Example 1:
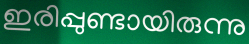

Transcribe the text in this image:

ഇരിപ്പുണ്ടായിരുന്നു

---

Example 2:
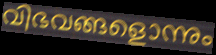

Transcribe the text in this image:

വിഭവങ്ങളൊന്നും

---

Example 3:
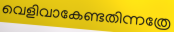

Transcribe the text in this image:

വെളിവാകേണ്ടതിന്നത്രേ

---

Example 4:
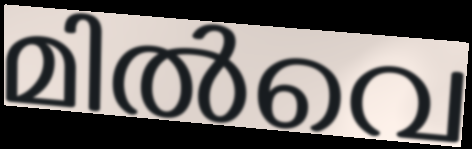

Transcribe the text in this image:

മിൽവെ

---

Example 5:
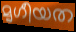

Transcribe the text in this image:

മൃഗീയത